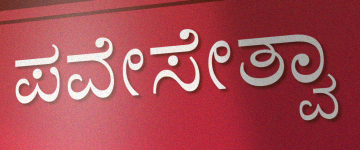
ಪವೇಸೇತ್ವಾ